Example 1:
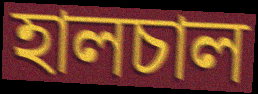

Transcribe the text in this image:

হালচাল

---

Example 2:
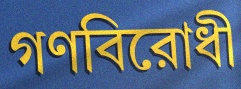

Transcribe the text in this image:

গণবিরোধী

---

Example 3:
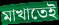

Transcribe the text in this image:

মাখাতেই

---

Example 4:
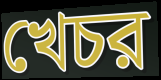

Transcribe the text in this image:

খেচর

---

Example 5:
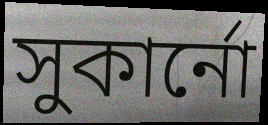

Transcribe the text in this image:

সুকার্নো